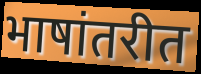
भाषांतरीत